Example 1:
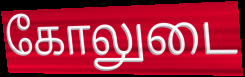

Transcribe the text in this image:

கோலுடை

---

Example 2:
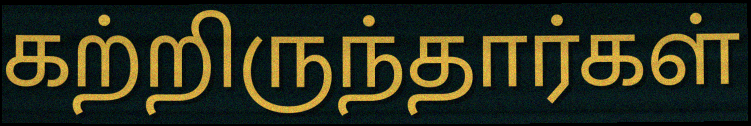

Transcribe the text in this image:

கற்றிருந்தார்கள்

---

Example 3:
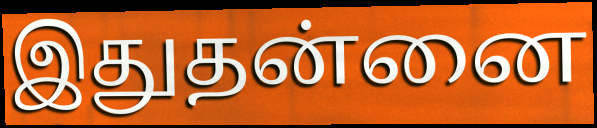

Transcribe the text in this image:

இதுதன்னை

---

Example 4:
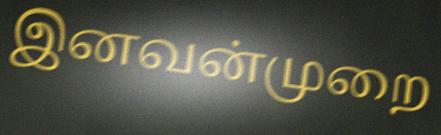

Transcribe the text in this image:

இனவன்முறை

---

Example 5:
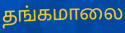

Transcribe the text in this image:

தங்கமாலை